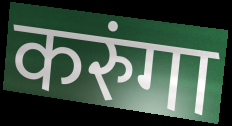
करुंगा